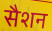
सैशन